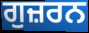
ਗੁਜ਼ਰਨ